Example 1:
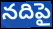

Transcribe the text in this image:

నదిపై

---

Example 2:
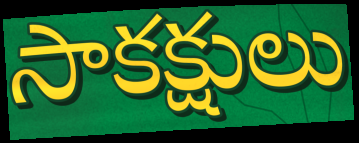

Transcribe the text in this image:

సాకక్షులు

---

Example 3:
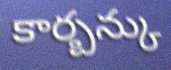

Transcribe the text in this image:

కార్బన్కు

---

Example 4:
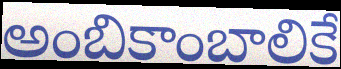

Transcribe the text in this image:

అంబికాంబాలికే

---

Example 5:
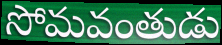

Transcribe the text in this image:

సోమవంతుడు